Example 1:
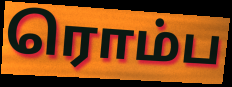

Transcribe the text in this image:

ரொம்ப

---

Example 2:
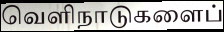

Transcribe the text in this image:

வெளிநாடுகளைப்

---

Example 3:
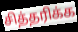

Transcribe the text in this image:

சித்தரிக்க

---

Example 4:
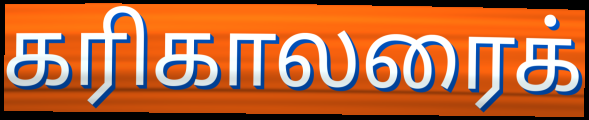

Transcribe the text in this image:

கரிகாலரைக்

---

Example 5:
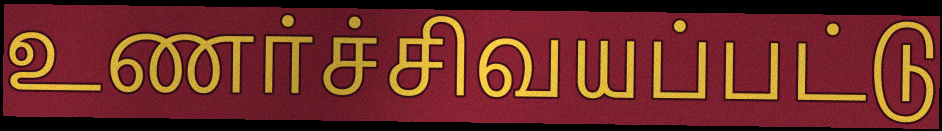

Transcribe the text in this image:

உணர்ச்சிவயப்பட்டு